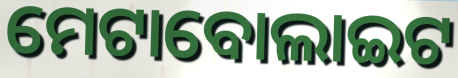
ମେଟାବୋଲାଇଟ